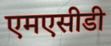
एमएसीडी